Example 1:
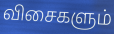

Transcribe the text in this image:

விசைகளும்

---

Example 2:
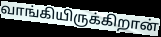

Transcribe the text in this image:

வாங்கியிருக்கிறான்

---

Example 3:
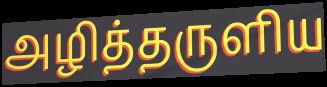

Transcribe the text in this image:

அழித்தருளிய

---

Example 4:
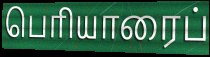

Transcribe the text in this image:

பெரியாரைப்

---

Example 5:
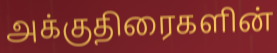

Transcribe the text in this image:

அக்குதிரைகளின்